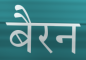
बैरन